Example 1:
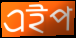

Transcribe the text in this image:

এইপ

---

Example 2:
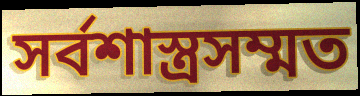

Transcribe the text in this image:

সর্বশাস্ত্রসম্মত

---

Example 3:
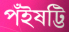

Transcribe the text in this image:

পঁইষট্টি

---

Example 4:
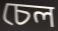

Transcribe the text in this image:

চেল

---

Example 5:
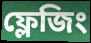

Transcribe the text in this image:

ফ্লেজিং